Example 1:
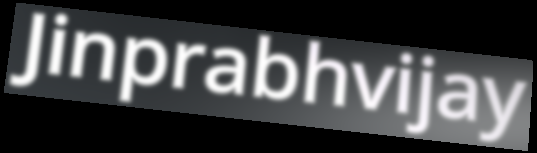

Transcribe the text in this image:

Jinprabhvijay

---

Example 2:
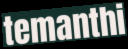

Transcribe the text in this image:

temanthi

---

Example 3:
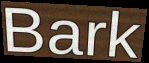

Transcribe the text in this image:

Bark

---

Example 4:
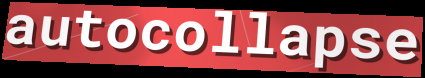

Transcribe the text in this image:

autocollapse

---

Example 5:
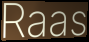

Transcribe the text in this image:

Raas